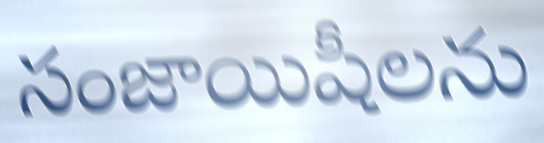
సంజాయిషీలను